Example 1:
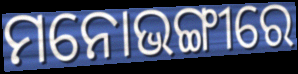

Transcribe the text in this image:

ମନୋଭଙ୍ଗୀରେ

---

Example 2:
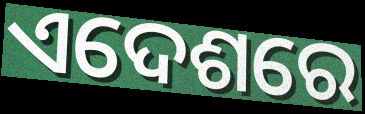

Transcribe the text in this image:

ଏଦେଶରେ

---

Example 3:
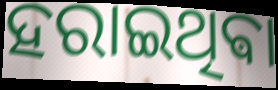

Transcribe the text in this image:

ହରାଇଥିଵା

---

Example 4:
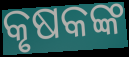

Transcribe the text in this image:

କୃଷକଙ୍କ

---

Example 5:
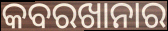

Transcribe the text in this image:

କବରଖାନାର